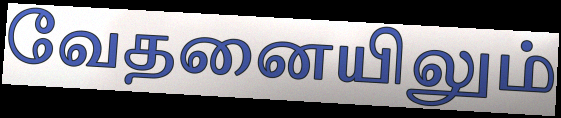
வேதனையிலும்